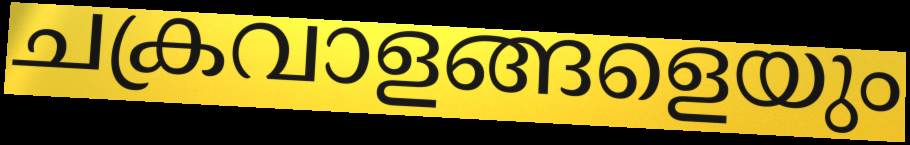
ചക്രവാളങ്ങളെയും